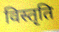
विस्तृति